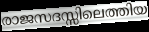
രാജസദസ്സിലെത്തിയ